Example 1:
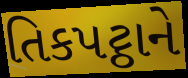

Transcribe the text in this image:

તિકપટ્ઠાને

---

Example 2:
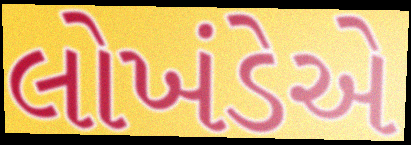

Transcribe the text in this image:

લોખંડેએ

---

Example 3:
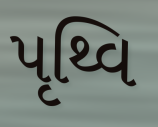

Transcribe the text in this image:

પૃથ્વિ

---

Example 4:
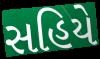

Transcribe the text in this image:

સહિયે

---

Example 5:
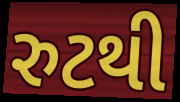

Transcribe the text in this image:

રુટથી